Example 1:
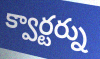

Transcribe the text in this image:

క్వార్టర్ను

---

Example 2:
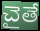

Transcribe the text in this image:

చైతే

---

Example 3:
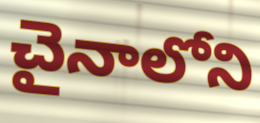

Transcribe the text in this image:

చైనాలోని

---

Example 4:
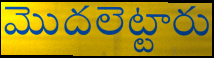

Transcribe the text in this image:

మొదలెట్టారు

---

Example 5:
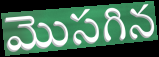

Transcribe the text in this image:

మొసగిన